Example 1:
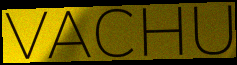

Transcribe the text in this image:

VACHU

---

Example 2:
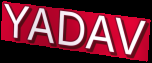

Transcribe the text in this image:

YADAV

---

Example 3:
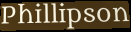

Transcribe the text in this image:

Phillipson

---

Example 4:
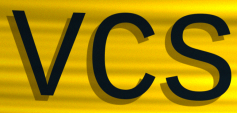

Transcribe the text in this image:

VCS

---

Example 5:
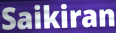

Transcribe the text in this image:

Saikiran